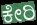
ಕೇರಿ